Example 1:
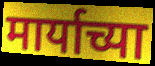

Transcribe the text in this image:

मार्याच्या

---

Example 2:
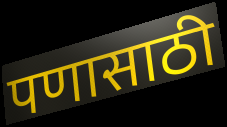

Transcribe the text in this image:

पणासाठी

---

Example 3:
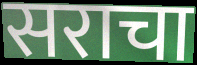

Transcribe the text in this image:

सराचा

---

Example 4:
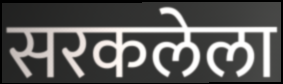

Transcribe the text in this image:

सरकलेला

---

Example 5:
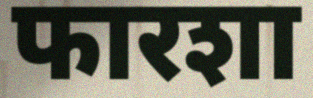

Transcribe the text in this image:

फारशा